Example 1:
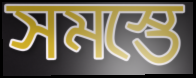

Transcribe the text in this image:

সমস্তে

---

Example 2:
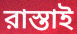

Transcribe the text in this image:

রাস্তাই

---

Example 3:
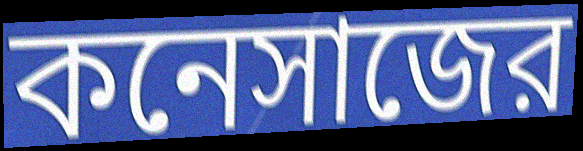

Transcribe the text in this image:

কনেসাজের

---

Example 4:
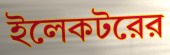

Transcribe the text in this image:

ইলেকটরের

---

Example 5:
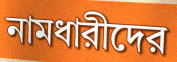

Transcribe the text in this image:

নামধারীদের